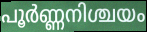
പൂർണ്ണനിശ്ചയം